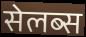
सेलब्स